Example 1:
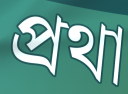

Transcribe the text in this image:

প্রথা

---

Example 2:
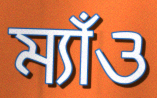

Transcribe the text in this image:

ম্যাঁও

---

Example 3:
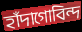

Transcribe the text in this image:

হাঁদাগোবিন্দ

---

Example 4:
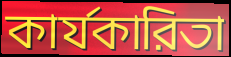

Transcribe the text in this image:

কার্যকারিতা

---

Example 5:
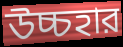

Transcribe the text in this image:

উচ্চহার